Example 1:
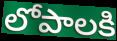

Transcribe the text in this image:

లోపాలకి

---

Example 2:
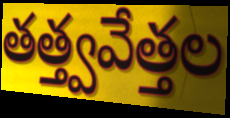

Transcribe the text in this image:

తత్త్వవేత్తల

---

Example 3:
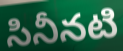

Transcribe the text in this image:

సినీనటి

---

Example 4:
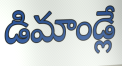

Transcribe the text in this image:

డిమాండ్లే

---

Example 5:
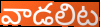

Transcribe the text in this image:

వాడలిట